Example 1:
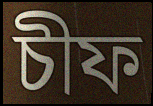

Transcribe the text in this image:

চীফ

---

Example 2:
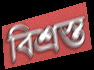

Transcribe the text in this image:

বিশ্রস্ত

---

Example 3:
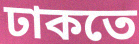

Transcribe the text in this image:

ঢাকতে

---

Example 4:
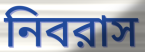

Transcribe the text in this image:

নিবরাস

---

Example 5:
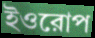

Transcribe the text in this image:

ইওরোপ